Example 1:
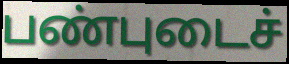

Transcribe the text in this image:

பண்புடைச்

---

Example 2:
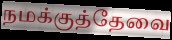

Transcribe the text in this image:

நமக்குத்தேவை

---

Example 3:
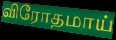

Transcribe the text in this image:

விரோதமாய்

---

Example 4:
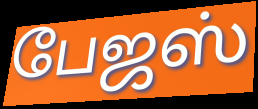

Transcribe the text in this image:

பேஜஸ்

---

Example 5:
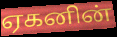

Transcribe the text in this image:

ஏகனின்